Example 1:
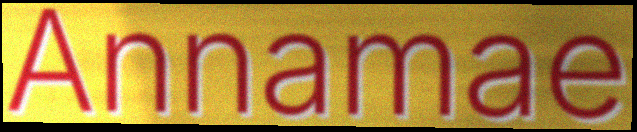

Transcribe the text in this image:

Annamae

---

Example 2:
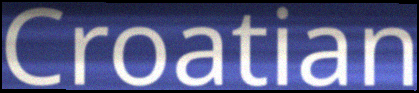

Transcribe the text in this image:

Croatian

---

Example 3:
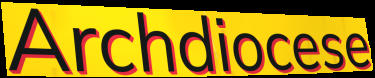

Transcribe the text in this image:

Archdiocese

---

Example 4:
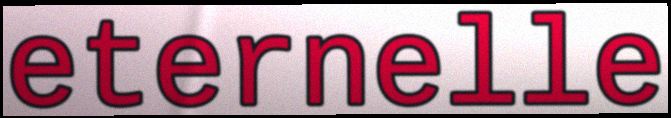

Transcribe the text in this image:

eternelle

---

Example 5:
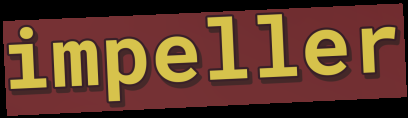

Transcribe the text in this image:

impeller